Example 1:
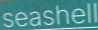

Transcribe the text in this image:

seashell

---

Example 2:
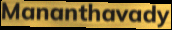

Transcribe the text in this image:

Mananthavady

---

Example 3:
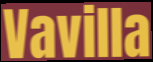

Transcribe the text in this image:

Vavilla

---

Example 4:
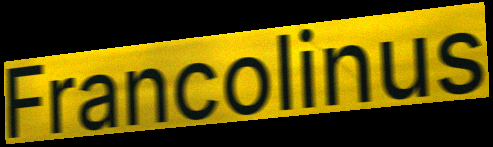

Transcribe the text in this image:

Francolinus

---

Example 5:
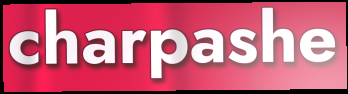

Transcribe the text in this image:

charpashe